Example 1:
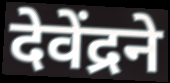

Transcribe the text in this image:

देवेंद्रने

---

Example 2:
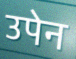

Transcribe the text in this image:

उपेन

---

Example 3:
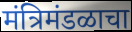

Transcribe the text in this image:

मंत्रिमंडळाचा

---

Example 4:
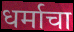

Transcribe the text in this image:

धर्माचा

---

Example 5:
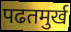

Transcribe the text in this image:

पढतमुर्ख